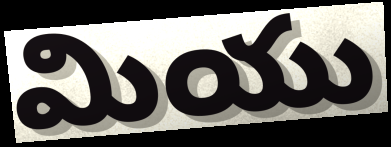
మియు